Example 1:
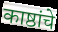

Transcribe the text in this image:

काष्ठांचे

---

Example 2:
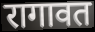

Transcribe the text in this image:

रागावत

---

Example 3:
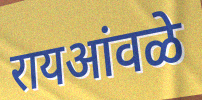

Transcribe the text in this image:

रायआंवळे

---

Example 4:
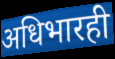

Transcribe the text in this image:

अधिभारही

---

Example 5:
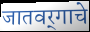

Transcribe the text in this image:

जातवर्गाचे